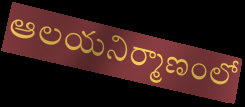
ఆలయనిర్మాణంలో